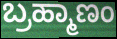
ಬ್ರಹ್ಮಾಣಂ